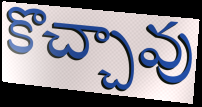
కొచ్చావు